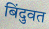
बिंदुवत